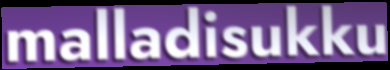
malladisukku